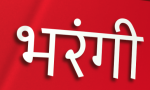
भरंगी